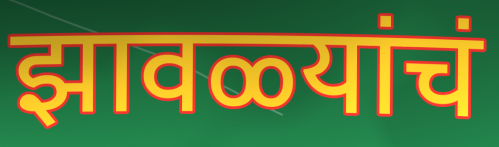
झावळ्यांचं